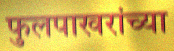
फुलपाखरांच्या